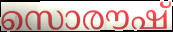
സൊരൗഷ്